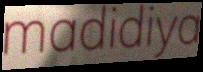
madidiya